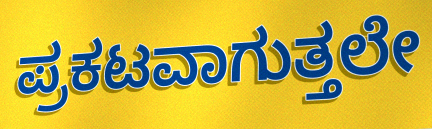
ಪ್ರಕಟವಾಗುತ್ತಲೇ